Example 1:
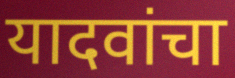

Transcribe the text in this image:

यादवांचा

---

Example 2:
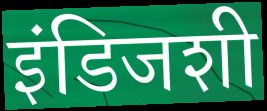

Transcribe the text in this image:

इंडिजशी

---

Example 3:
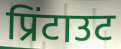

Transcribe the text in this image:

प्रिंटाउट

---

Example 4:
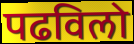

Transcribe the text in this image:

पढविलो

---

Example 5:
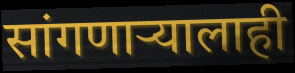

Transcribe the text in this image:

सांगणाऱ्यालाही